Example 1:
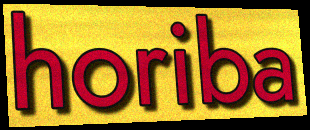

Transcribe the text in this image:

horiba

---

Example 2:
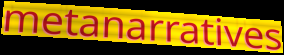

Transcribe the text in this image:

metanarratives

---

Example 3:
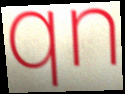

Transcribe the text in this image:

qn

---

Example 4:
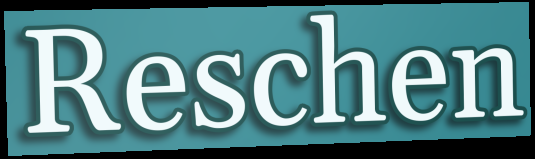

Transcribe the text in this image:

Reschen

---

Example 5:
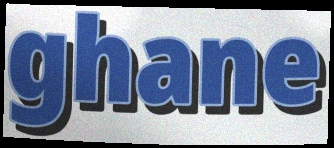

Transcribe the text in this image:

ghane